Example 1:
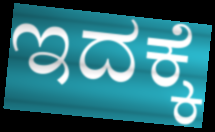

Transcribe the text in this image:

ಇದಕ್ಕೆ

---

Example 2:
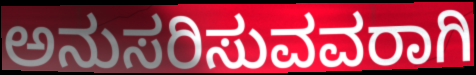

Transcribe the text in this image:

ಅನುಸರಿಸುವವರಾಗಿ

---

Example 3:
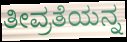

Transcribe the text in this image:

ತೀವ್ರತೆಯನ್ನ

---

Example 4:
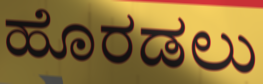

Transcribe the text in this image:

ಹೊರಡಲು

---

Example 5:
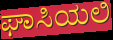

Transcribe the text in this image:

ಘಾಸಿಯಲಿ